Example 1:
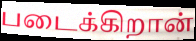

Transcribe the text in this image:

படைக்கிறான்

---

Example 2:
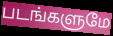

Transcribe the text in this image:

படங்களுமே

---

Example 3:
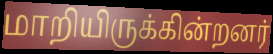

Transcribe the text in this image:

மாறியிருக்கின்றனர்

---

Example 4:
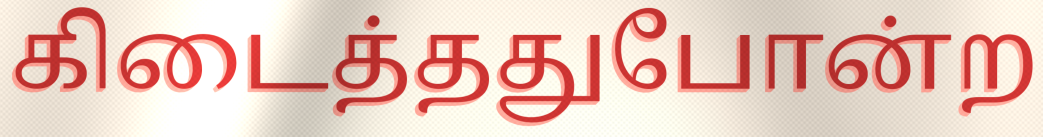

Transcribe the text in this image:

கிடைத்ததுபோன்ற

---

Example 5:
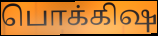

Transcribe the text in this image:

பொக்கிஷ